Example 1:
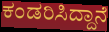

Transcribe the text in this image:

ಕಂಡರಿಸಿದ್ದಾನೆ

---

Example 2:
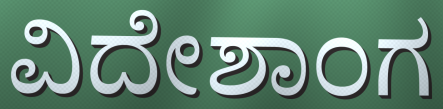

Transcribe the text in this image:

ವಿದೇಶಾಂಗ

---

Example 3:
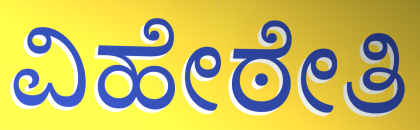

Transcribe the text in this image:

ವಿಹೇಠೇತಿ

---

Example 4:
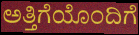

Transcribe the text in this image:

ಅತ್ತಿಗೆಯೊಂದಿಗೆ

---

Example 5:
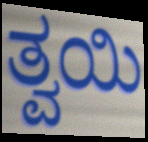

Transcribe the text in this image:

ತ್ವಯಿ